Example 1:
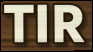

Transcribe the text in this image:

TIR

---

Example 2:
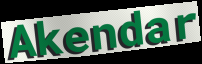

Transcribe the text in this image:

Akendar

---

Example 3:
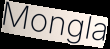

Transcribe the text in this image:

Mongla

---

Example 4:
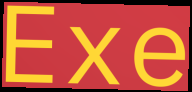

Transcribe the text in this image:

Exe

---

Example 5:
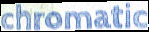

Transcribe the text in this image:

chromatic